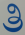
ತಿ